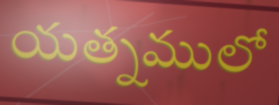
యత్నములో